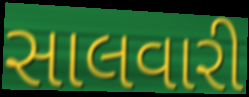
સાલવારી